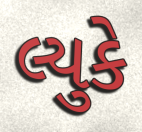
લ્યુકે